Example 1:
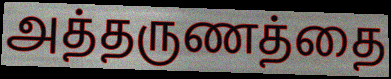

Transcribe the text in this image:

அத்தருணத்தை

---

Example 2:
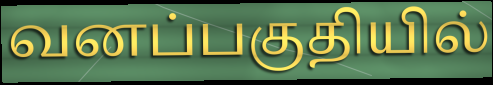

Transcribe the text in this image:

வனப்பகுதியில்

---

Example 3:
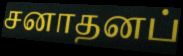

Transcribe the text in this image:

சனாதனப்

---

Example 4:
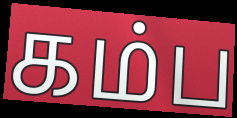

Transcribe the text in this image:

கம்ப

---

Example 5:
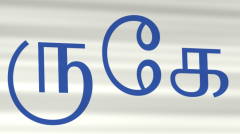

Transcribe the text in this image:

ருகே